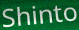
Shinto